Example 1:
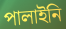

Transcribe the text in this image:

পালাইনি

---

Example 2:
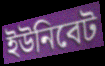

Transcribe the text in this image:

ইউনিবেট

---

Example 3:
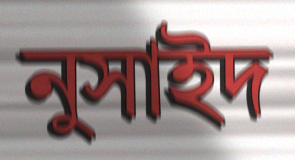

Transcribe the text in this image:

নুসাইদ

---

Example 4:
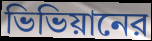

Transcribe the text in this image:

ভিভিয়ানের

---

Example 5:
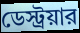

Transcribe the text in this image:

ডেস্ট্রয়ার